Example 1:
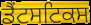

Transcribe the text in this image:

ਡੈਂਟਸਟਿਕਸ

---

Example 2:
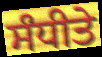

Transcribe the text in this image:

ਸੰਧੀਤੇ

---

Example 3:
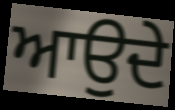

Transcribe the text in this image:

ਆਉਦੇ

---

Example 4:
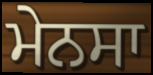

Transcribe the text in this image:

ਮੇਨਸਾ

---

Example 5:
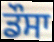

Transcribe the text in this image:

ਡੌਸਾ